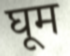
घूम